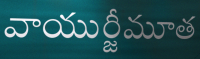
వాయుర్జీమూత